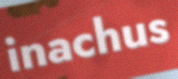
inachus